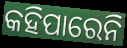
କହିପାରେନି